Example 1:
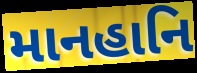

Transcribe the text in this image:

માનહાનિ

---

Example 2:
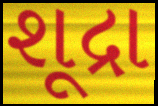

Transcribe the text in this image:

શૂદ્રા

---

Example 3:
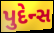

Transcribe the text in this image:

પુદેન્સ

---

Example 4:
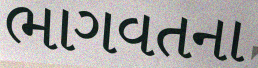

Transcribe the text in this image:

ભાગવતના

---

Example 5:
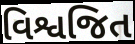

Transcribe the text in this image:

વિશ્વજિત